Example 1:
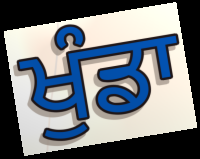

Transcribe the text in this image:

ਖੁੰਡਾ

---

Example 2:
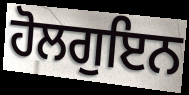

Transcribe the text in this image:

ਹੋਲਗੁਇਨ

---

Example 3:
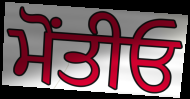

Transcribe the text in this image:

ਮੋਂਤੀਓ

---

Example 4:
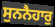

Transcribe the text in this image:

ਸੁਨਨੈਹਾਰੁ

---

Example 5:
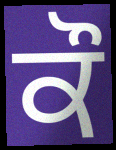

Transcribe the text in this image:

ਕੌ